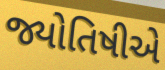
જ્યોતિષીએ